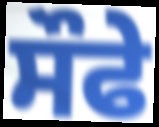
ਸੌਫੇ